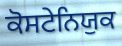
ਕੋਸਟੇਨਿਯੁਕ